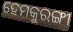
ହେମକୁରଙ୍ଗୀ